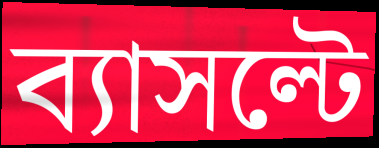
ব্যাসল্টে